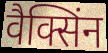
वैक्सिंन